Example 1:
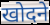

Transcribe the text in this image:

खोदने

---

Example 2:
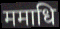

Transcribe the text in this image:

ममाधि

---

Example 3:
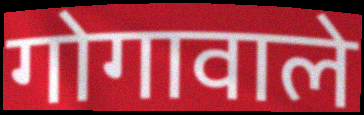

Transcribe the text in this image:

गोगावाले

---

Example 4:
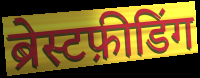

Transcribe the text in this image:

ब्रेस्टफ़ीडिंग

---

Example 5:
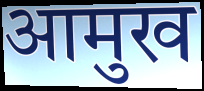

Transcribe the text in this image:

आमुख